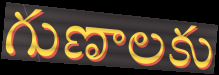
గుణాలకు